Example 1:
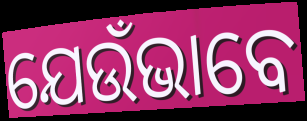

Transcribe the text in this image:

ଯେଉଁଭାବେ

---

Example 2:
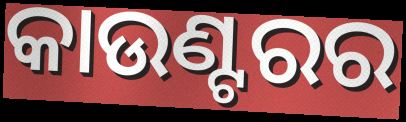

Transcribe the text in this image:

କାଉଣ୍ଟରର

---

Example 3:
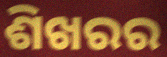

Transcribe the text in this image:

ଶିଖରର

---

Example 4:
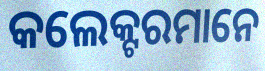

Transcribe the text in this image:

କଲେକ୍ଟରମାନେ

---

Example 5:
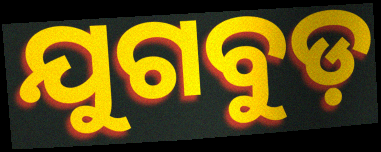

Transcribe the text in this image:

ଯୁଗବୁଡ଼